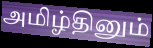
அமிழ்தினும்